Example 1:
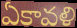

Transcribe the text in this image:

ఏకావళి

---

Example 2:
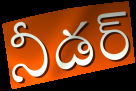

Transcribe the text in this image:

నీడర్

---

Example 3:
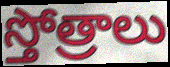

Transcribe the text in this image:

స్తోత్రాలు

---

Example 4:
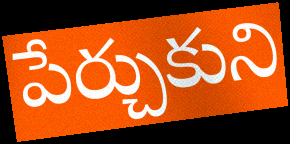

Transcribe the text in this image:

పేర్చుకుని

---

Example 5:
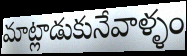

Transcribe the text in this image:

మాట్లాడుకునేవాళ్ళం